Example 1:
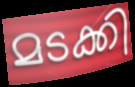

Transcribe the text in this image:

മടക്കി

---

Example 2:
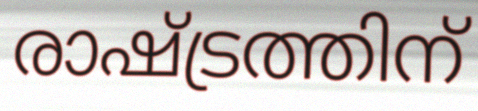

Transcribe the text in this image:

രാഷ്ട്രത്തിന്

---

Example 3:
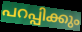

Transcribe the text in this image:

പറപ്പിക്കും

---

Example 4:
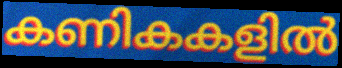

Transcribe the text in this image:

കണികകളിൽ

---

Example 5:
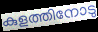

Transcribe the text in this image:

കുളത്തിനോടു